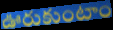
ఊరుకుంటాం